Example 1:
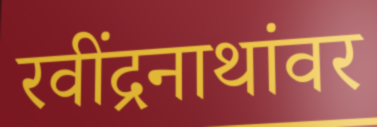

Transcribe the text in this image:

रवींद्रनाथांवर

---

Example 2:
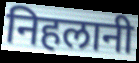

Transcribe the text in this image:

निहलानी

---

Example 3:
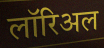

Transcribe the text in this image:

लॉरिअल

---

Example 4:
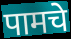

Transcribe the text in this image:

पामचे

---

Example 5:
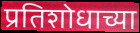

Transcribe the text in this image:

प्रतिशोधाच्या